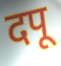
दपू